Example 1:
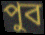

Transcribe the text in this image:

পুব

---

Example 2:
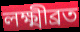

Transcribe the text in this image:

লক্ষ্মীব্রত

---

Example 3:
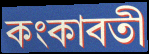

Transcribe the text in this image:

কংকাবতী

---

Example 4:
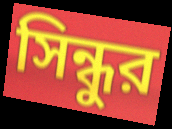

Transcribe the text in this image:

সিন্ধুর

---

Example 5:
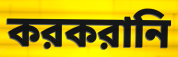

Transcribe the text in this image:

করকরানি